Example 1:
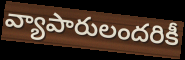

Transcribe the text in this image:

వ్యాపారులందరికీ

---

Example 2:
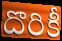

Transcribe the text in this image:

దొరికీ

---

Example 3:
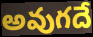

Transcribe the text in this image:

అవుగదే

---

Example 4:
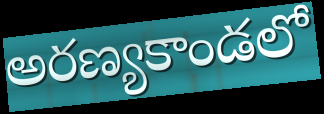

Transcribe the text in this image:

అరణ్యకాండలో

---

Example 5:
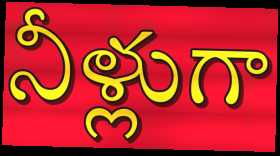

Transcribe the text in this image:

నీళ్లుగా